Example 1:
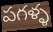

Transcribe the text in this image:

పగళ్ళ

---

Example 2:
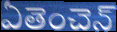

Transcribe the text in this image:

ఏతెంచెన్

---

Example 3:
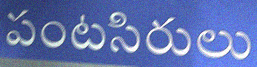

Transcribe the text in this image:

పంటసిరులు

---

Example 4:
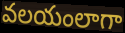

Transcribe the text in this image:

వలయంలాగా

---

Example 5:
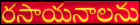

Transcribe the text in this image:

రసాయనాలను